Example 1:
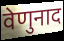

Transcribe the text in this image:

वेणुनाद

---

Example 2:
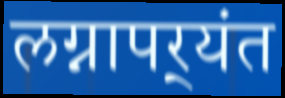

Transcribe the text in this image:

लग्नापर्यंत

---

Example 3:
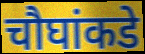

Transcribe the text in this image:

चौघांकडे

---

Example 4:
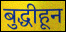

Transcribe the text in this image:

बुद्धीहून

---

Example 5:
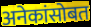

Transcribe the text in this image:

अनेकांसोबत